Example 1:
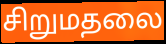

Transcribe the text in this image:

சிறுமதலை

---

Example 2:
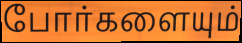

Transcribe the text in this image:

போர்களையும்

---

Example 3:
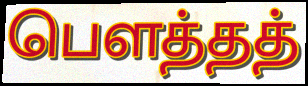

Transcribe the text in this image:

பௌத்தத்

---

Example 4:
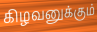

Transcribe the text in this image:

கிழவனுக்கும்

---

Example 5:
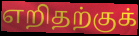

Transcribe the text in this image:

எறிதற்குக்